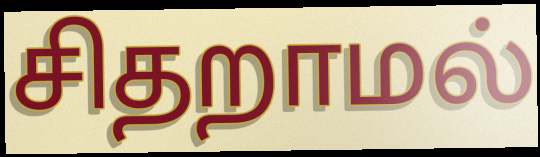
சிதறாமல்